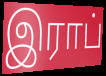
இராப்